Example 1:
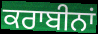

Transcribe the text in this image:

ਕਰਾਬੀਨਾਂ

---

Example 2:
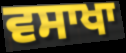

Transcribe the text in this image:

ਵਸਾਖਾ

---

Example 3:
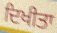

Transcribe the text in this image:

ਦਿਖੀਤਾ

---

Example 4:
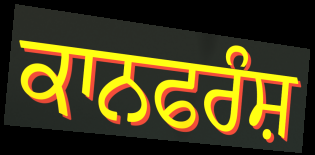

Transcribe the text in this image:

ਕਾਨਫਰੰਸ਼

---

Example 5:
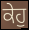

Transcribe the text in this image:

ਕੇਹੁ